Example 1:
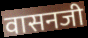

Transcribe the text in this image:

वासनजी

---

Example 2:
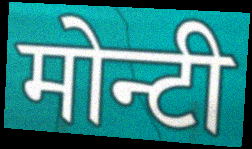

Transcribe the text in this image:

मोन्टी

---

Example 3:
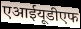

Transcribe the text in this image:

एआईयूडीएफ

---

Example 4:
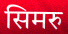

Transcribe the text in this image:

सिमरु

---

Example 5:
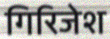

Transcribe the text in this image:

गिरिजेश